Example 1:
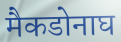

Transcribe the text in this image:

मैकडोनाघ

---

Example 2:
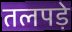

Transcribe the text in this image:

तलपड़े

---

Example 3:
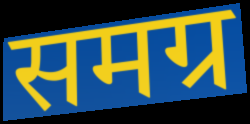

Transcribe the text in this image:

समग्र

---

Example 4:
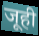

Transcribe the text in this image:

जूही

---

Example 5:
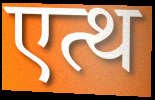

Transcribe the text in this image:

एत्थ